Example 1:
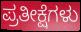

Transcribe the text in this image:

ಪ್ರತೀಕ್ಷೆಗಳು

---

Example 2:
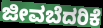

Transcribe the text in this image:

ಜೀವಬೆದರಿಕೆ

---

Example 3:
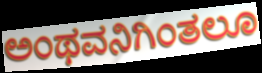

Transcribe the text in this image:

ಅಂಥವನಿಗಿಂತಲೂ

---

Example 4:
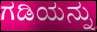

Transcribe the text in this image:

ಗಡಿಯನ್ನು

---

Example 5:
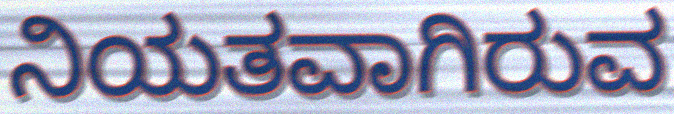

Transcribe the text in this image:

ನಿಯತವಾಗಿರುವ